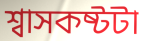
শ্বাসকষ্টটা